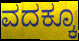
ವದಕ್ಕೂ